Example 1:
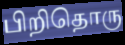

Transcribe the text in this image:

பிறிதொரு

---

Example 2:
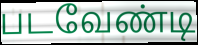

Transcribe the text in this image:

படவேண்டி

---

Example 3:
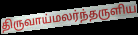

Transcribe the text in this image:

திருவாய்மலர்ந்தருளிய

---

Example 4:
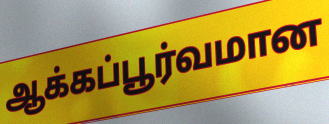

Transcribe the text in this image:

ஆக்கப்பூர்வமான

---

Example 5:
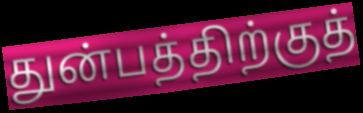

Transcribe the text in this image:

துன்பத்திற்குத்